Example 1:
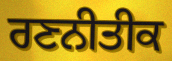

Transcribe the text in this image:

ਰਣਨੀਤੀਕ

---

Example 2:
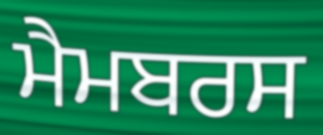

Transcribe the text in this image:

ਮੈਮਬਰਸ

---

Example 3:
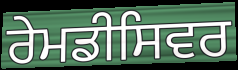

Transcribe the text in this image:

ਰੇਮਡੀਸਿਵਰ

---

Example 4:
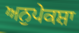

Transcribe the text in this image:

ਅਨੁਪੇਕਸ਼ਾ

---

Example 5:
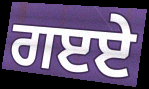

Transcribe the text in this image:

ਗੲਏ